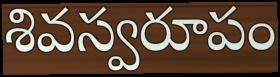
శివస్వరూపం